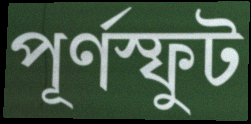
পূর্ণস্ফুট